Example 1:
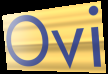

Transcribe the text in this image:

Ovi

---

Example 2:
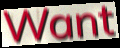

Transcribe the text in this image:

Want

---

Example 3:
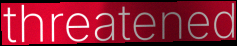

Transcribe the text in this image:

threatened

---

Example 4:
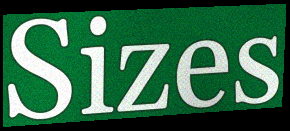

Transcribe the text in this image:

Sizes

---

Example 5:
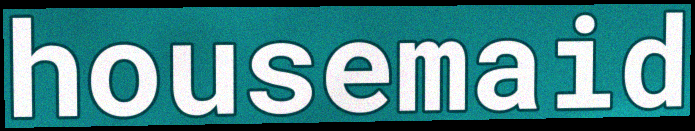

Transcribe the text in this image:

housemaid